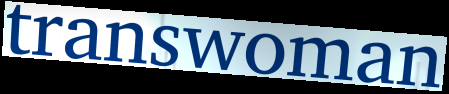
transwoman